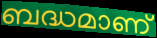
ബദ്ധമാണ്